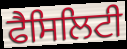
ਫੈਸਿਲਿਟੀ